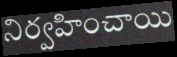
నిర్వహించాయి